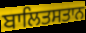
ਬਾਲਿਤਸਤਾਨ